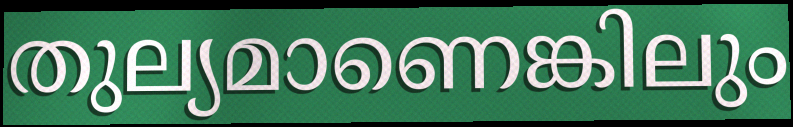
തുല്യമാണെങ്കിലും